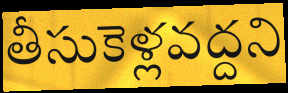
తీసుకెళ్లవద్దని